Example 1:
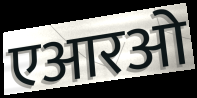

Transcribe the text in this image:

एआरओ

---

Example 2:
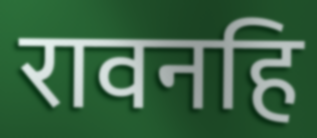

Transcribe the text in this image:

रावनहि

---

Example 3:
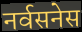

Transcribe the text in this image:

नर्वसनेस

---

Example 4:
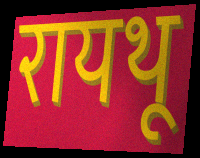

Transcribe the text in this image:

रायथू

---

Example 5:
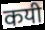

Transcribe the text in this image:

कयी